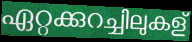
ഏറ്റക്കുറച്ചിലുകള്